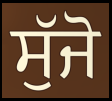
ਸੁੱਜੋ